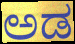
ಅಡ